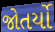
જોતર્યો